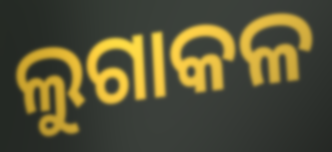
ଲୁଗାକଳ